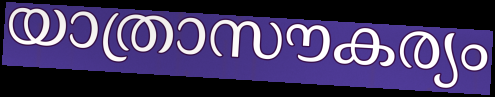
യാത്രാസൗകര്യം